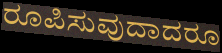
ರೂಪಿಸುವುದಾದರೂ